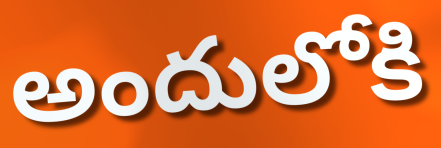
అందులోకి